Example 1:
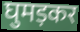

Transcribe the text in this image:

घुमड़कर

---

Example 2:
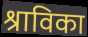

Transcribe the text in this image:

श्राविका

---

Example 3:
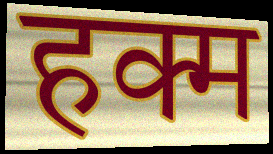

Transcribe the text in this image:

हक्म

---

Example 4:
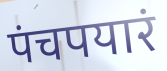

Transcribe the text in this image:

पंचपयारं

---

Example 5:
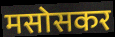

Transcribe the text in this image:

मसोसकर